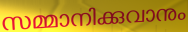
സമ്മാനിക്കുവാനും